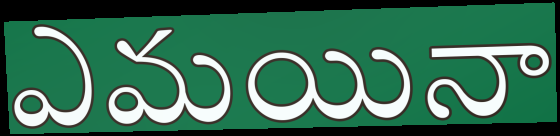
ఎమయినా